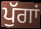
ਪੁੱਗਾਂ